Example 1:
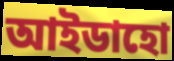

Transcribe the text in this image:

আইডাহো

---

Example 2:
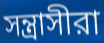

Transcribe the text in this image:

সন্ত্রাসীরা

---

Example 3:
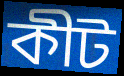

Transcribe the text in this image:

কীট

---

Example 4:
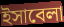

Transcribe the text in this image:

ইসাবেলা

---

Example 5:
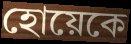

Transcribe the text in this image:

হোয়েকে